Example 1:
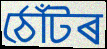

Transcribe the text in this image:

ঠোঁটৰ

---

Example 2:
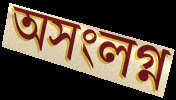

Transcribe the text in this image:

অসংলগ্ন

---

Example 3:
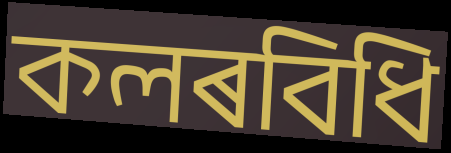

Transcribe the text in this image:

কলৰবিধি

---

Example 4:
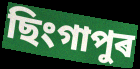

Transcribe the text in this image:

ছিংগাপুৰ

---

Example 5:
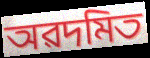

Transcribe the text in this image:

অৱদমিত